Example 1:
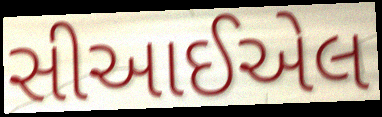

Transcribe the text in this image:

સીઆઈએલ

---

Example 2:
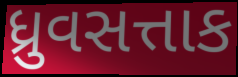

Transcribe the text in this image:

ધ્રુવસત્તાક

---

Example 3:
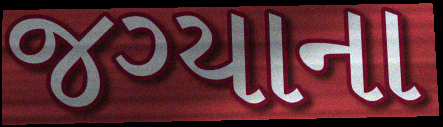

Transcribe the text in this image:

જગ્યાના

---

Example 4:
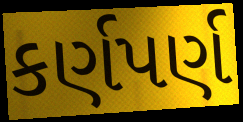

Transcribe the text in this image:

કર્ણપર્ણ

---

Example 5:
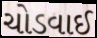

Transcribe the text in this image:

ચોડવાઈ